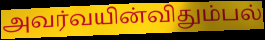
அவர்வயின்விதும்பல்